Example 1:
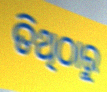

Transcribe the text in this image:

ତିଥିଠାରୁ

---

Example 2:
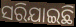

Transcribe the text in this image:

ସରିଯାଇଛି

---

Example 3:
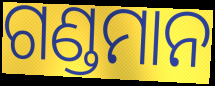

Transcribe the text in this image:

ଗଣ୍ଡମାନ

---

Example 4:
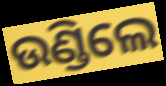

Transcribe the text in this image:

ଉଣ୍ଡିଲେ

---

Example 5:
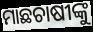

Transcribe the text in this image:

ମାଛଚାଷୀଙ୍କୁ